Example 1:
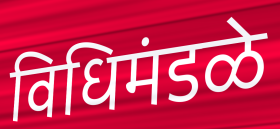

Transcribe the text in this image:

विधिमंडळे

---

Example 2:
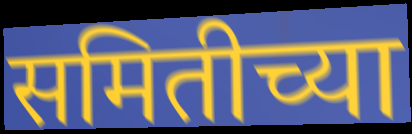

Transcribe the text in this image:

समितीच्या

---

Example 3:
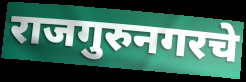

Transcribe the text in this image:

राजगुरुनगरचे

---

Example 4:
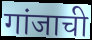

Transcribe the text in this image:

गांजाची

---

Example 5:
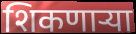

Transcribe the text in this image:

शिकणाऱ्या